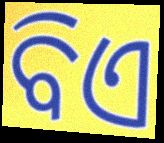
ବିଏ